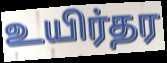
உயிர்தர